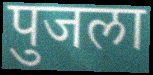
पुजला